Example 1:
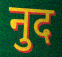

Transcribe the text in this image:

नुद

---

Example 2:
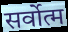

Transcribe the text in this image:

सर्वोत्म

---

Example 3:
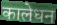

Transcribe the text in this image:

कालेधन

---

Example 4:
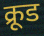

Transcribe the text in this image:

क्रूड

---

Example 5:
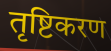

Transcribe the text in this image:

तृष्टिकरण